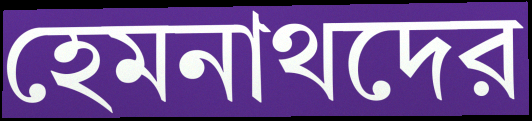
হেমনাথদের